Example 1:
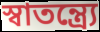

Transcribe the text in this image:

স্বাতন্ত্র্যে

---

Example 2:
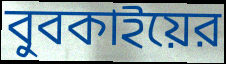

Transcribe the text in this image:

বুবকাইয়ের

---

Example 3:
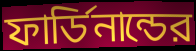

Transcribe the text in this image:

ফার্ডিনান্ডের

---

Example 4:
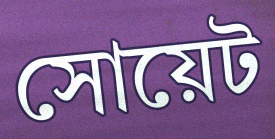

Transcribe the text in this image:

সোয়েট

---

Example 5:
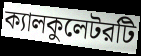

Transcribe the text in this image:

ক্যালকুলেটরটি